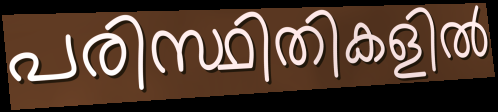
പരിസ്ഥിതികളിൽ